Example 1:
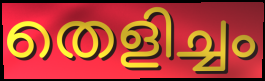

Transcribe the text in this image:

തെളിച്ചം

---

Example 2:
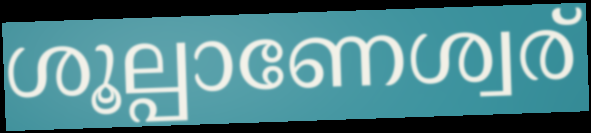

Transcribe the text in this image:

ശൂല്പാണേശ്വര്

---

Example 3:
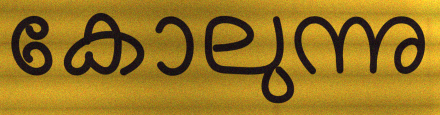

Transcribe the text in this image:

കോലുന്നു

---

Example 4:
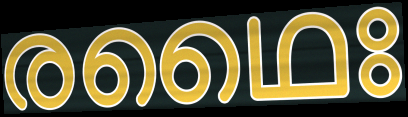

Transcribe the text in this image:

രഥൈഃ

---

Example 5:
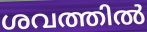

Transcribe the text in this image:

ശവത്തിൽ